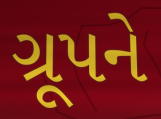
ગ્રૂપને